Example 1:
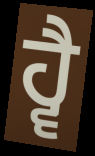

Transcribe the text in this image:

ਹ੍ਵੈ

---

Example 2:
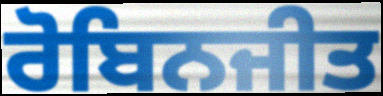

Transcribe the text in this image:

ਰੋਬਿਨਜੀਤ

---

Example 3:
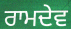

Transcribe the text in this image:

ਰਾਮਦੇਵ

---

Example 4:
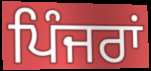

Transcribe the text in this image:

ਪਿੰਜਰਾਂ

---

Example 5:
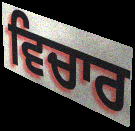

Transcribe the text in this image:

ਵਿਚਾਰ